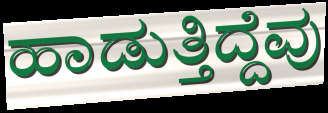
ಹಾಡುತ್ತಿದ್ದೆವು